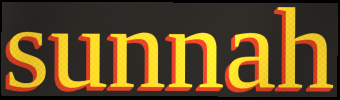
sunnah